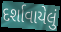
દર્શાવાયેલું